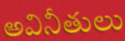
అవినీతులు